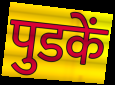
पुडकें